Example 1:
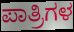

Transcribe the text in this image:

ಪಾತ್ರಿಗಳ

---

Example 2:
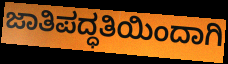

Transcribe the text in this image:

ಜಾತಿಪದ್ಧತಿಯಿಂದಾಗಿ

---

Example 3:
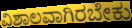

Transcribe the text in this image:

ವಿಶಾಲವಾಗಿರಬೇಕು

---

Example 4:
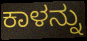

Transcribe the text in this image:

ಕಾಳನ್ನು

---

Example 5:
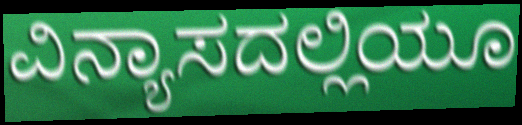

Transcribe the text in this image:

ವಿನ್ಯಾಸದಲ್ಲಿಯೂ